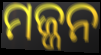
ମଜ୍ଜନ